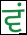
ਵਂ